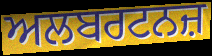
ਅਲਬਰਟਨਜ਼